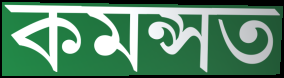
কমন্সত